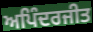
ਅਪਿੰਦਰਜੀਤ